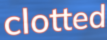
clotted